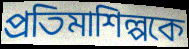
প্রতিমাশিল্পকে